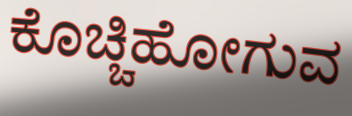
ಕೊಚ್ಚಿಹೋಗುವ